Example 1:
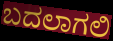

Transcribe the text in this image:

ಬದಲಾಗಲಿ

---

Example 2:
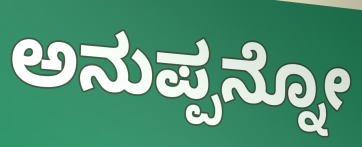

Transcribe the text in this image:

ಅನುಪ್ಪನ್ನೋ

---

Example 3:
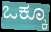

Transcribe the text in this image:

ಒಕ್ಕೂ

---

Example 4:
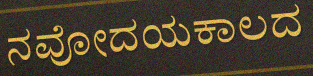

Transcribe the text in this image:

ನವೋದಯಕಾಲದ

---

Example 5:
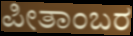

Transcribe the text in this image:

ಪೀತಾಂಬರ